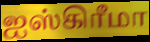
ஐஸ்கிரீமா